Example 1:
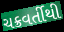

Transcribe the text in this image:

ચક્રવર્તીથી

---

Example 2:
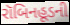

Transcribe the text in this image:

રૉબિનહૂડની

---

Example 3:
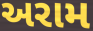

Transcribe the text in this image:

અરામ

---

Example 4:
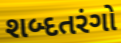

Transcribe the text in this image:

શબ્દતરંગો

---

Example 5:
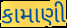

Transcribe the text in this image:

કામાણી